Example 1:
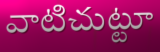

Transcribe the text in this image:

వాటిచుట్టూ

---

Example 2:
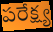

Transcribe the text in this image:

పరేక్ష్య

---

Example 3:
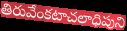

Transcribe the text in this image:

తిరువేంకటాచలాధిపుని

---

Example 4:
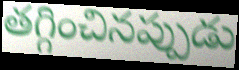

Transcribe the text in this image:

తగ్గించినప్పుడు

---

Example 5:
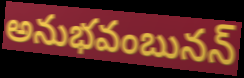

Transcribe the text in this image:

అనుభవంబునన్